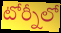
టోర్నీలో